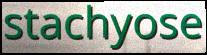
stachyose